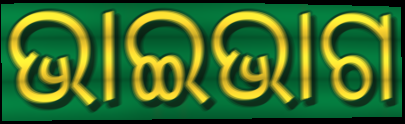
ଭାଇଭାଗ